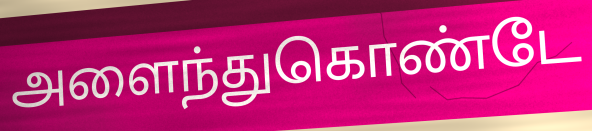
அளைந்துகொண்டே